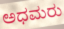
ಅಧಮರು